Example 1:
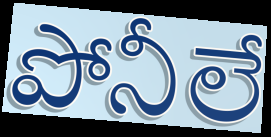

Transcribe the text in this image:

పోనీలే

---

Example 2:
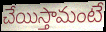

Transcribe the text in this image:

చేయిస్తామంటే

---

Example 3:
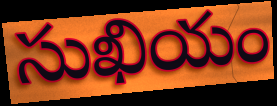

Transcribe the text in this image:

సుఖియం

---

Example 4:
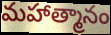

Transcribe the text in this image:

మహాత్మానం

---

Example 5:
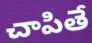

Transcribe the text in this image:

చాపితే